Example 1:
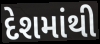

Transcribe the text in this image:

દેશમાંથી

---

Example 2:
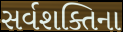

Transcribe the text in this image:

સર્વશક્તિના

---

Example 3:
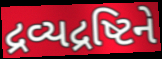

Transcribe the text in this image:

દ્રવ્યદ્રષ્ટિને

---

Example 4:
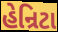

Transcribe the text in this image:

હેન્રિટા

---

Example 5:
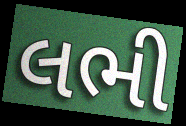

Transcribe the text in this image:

લભી